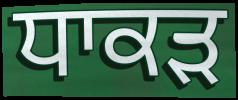
ਧਾਕੜ